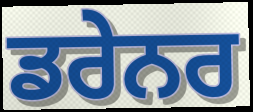
ਡਰੇਨਰ